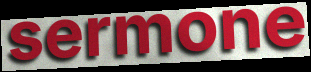
sermone